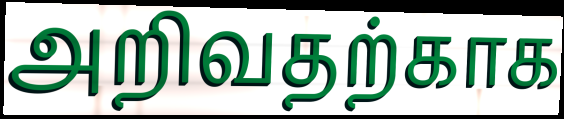
அறிவதற்காக